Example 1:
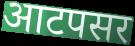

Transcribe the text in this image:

आटपसर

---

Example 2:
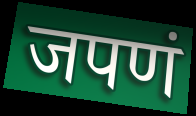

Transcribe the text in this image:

जपणं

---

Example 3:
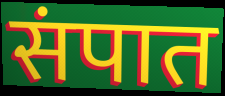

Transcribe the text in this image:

संपात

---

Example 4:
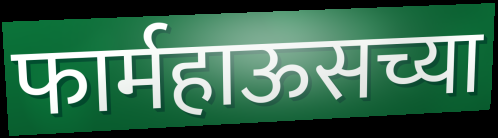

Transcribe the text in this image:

फार्महाऊसच्या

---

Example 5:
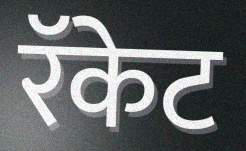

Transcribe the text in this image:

रॅकेट